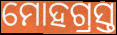
ମୋହଗ୍ରସ୍ତ